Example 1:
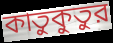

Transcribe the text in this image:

কাতুকুতুর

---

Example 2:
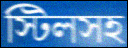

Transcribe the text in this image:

স্টিলসহ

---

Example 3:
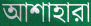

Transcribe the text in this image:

আশাহারা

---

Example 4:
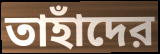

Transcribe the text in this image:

তাহাঁদের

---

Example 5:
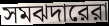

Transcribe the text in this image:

সমঝদারেরা